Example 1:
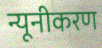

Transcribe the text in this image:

न्यूनीकरण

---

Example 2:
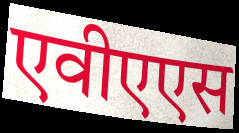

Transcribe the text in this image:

एवीएएस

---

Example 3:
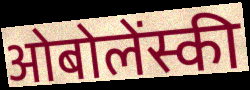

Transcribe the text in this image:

ओबोलेंस्की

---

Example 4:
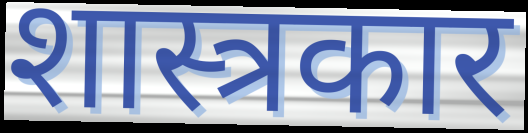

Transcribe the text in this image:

शास्त्रकार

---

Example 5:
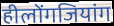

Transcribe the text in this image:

हीलोंगजियांग